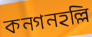
কনগনহল্লি